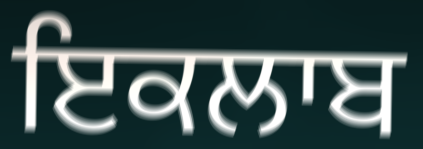
ਇਕਲਾਬ